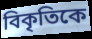
বিকৃতিকে